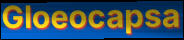
Gloeocapsa